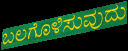
ಬಲಗೊಳಿಸುವುದು